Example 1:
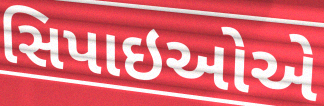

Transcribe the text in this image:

સિપાઇઓએ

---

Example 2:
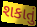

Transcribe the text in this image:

શકાતું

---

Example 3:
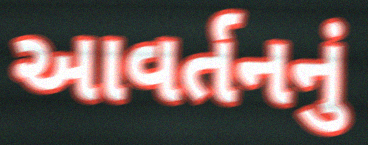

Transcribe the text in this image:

આવર્તનનું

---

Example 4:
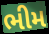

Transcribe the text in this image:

ભીમ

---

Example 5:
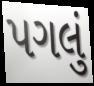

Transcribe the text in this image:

પગલું